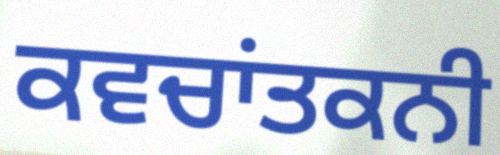
ਕਵਚਾਂਤਕਨੀ